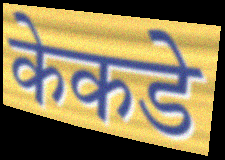
केकडे